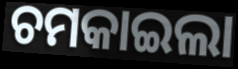
ଚମକାଇଲା